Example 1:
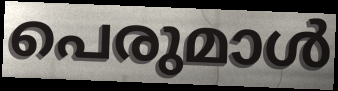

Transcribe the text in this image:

പെരുമാൾ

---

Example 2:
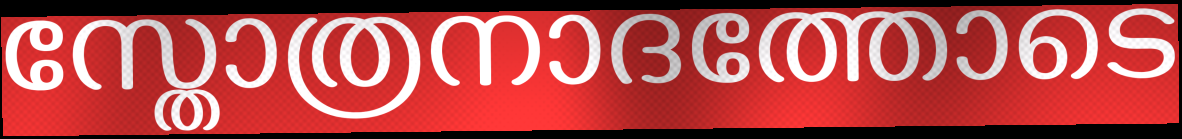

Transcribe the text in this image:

സ്തോത്രനാദത്തോടെ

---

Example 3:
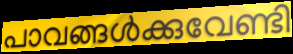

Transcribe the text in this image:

പാവങ്ങൾക്കുവേണ്ടി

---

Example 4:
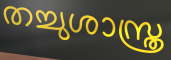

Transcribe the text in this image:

തച്ചുശാസ്ത്ര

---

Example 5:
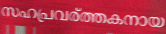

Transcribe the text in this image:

സഹപ്രവര്ത്തകനായ